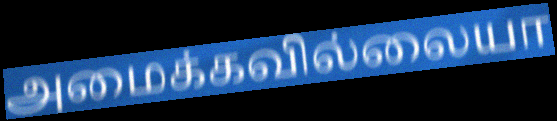
அமைக்கவில்லையா